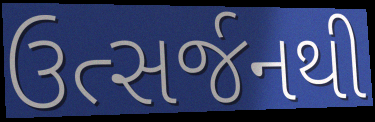
ઉત્સર્જનથી